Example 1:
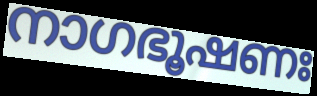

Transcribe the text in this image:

നാഗഭൂഷണഃ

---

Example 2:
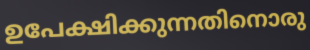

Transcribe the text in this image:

ഉപേക്ഷിക്കുന്നതിനൊരു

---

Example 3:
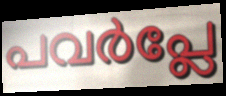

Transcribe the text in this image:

പവർപ്ലേ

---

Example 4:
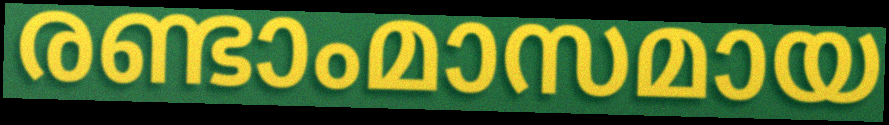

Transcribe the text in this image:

രണ്ടാംമാസമായ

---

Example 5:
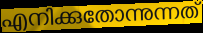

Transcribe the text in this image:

എനിക്കുതോന്നുന്നത്